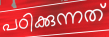
പഠിക്കുന്നത്